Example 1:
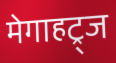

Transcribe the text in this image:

मेगाहट्र्ज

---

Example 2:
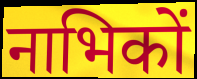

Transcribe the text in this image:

नाभिकों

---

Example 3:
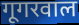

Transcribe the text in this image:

गूगरवाल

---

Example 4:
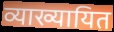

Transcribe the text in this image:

व्याख्यायित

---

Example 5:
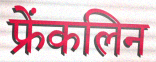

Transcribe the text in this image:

फ्रेंकलिन